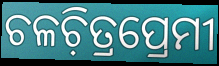
ଚଳଚ଼ିତ୍ରପ୍ରେମୀ